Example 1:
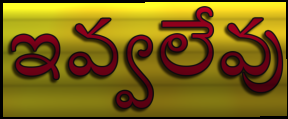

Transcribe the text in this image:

ఇవ్వలేవు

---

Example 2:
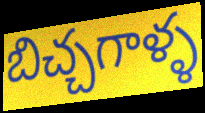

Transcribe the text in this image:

బిచ్చగాళ్ళ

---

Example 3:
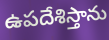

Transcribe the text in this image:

ఉపదేశిస్తాను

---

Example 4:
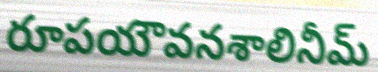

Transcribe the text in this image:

రూపయౌవనశాలినీమ్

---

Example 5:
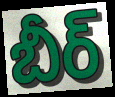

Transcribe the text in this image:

బీర్